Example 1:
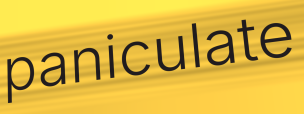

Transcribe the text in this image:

paniculate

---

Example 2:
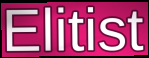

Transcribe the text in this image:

Elitist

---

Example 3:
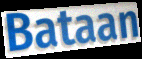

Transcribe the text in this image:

Bataan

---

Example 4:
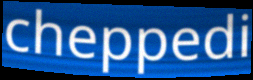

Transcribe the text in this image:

cheppedi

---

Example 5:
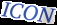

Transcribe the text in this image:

ICON